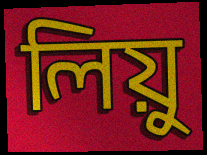
লিয়ু